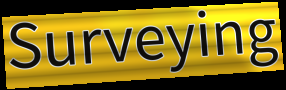
Surveying